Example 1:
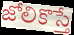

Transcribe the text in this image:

జోలికొస్తే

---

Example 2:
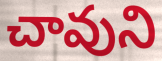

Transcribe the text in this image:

చావుని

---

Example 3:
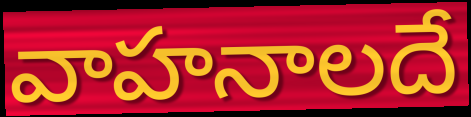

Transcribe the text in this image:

వాహనాలదే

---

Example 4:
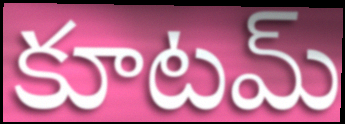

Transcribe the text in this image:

కూటమ్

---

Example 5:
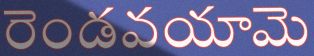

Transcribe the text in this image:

రెండవయామె